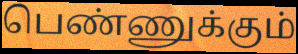
பெண்ணுக்கும்